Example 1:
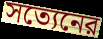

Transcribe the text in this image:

সত্যেনের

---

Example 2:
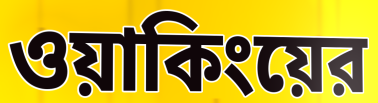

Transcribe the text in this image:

ওয়াকিংয়ের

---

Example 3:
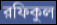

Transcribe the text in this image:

রফিকুল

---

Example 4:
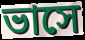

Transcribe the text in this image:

ভাসে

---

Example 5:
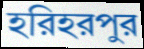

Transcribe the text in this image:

হরিহরপুর